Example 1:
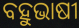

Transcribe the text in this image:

ବହୁଭାଷୀ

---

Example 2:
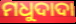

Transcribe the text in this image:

ମଧୁଦାଦା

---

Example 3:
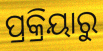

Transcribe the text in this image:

ପ୍ରକ୍ରିୟାରୁ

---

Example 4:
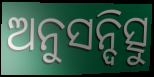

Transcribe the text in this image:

ଅନୁସନ୍ଦିତ୍ସୁ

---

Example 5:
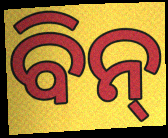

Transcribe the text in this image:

ବିନ୍